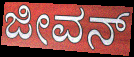
ಜೀವನ್